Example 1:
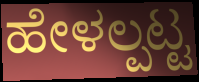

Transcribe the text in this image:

ಹೇಳಲ್ಪಟ್ಟ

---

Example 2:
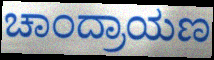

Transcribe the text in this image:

ಚಾಂದ್ರಾಯಣ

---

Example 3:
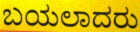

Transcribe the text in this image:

ಬಯಲಾದರು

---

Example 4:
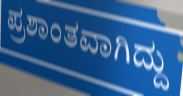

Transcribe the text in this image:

ಪ್ರಶಾಂತವಾಗಿದ್ದು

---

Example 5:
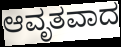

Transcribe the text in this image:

ಆವೃತವಾದ